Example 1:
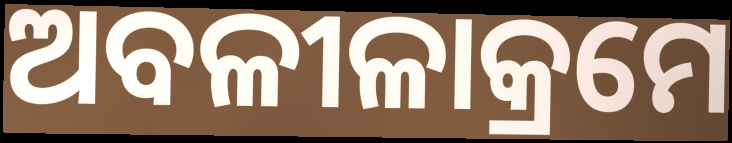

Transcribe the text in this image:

ଅବଳୀଳାକ୍ରମେ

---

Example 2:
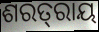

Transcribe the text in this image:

ଶରତ୍‌ରାୟ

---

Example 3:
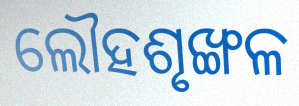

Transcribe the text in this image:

ଲୌହଶୃଙ୍ଖଳ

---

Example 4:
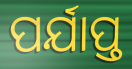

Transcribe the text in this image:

ପର୍ଯାପ୍ତ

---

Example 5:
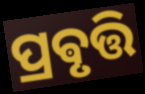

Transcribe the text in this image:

ପ୍ରଵୃତ୍ତି